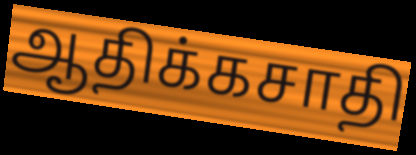
ஆதிக்கசாதி